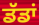
ਡੱਡਾਂ